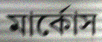
মার্কোস